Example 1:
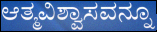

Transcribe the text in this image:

ಆತ್ಮವಿಶ್ವಾಸವನ್ನೂ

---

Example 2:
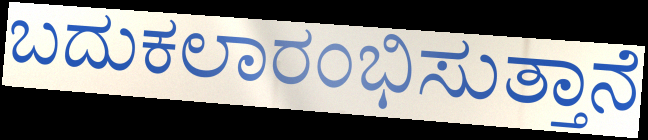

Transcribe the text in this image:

ಬದುಕಲಾರಂಭಿಸುತ್ತಾನೆ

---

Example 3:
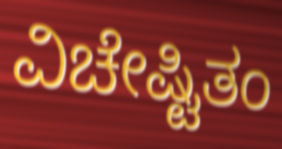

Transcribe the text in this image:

ವಿಚೇಷ್ಟಿತಂ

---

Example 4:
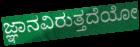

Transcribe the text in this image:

ಜ್ಞಾನವಿರುತ್ತದೆಯೋ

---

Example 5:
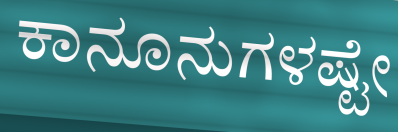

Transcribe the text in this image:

ಕಾನೂನುಗಳಷ್ಟೇ